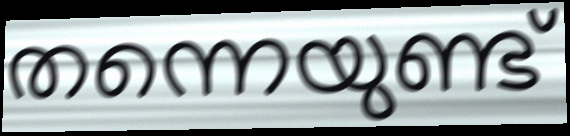
തന്നെയുണ്ട്